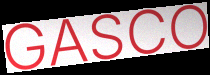
GASCO